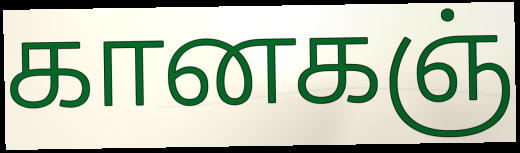
கானகஞ்